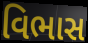
વિભાસ